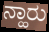
ನ್ಹಾರು